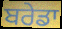
ਬਰੇਡਾ